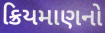
ક્રિયમાણનો